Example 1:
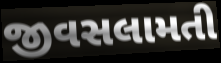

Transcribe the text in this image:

જીવસલામતી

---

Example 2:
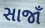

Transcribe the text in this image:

સાજાઁ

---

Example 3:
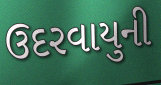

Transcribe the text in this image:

ઉદરવાયુની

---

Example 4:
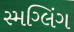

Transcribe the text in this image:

સ્મગ્લિંગ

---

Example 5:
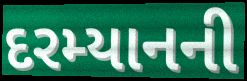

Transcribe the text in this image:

દરમ્યાનની